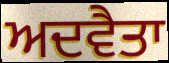
ਅਦਵੈਤਾ